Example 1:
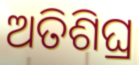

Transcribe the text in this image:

ଅତିଶିଘ୍ର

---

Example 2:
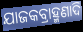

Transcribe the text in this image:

ଯାଜକବ୍ରାହ୍ମଣାଦି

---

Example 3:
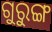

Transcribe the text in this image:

ଗୁରୁଙ୍ଗ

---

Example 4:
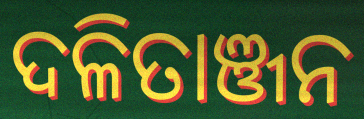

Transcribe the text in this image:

ଦଳିତାଞ୍ଜନ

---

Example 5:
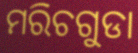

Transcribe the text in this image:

ମରିଚଗୁଡା